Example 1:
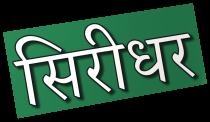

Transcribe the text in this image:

सिरीधर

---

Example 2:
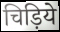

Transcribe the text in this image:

चिड़िये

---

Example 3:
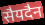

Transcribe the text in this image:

सैयदैन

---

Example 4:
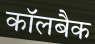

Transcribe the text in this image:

कॉलबैक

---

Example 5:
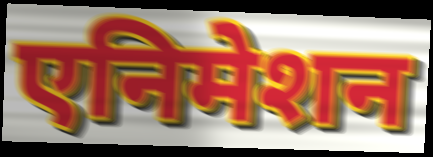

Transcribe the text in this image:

एनिमेशन